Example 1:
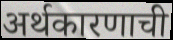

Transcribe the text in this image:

अर्थकारणाची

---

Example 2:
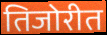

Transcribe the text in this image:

तिजोरीत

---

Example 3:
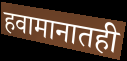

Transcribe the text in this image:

हवामानातही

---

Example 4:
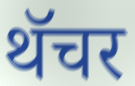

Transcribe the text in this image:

थॅचर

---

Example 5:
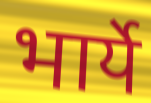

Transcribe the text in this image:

भार्ये